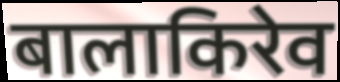
बालाकिरेव